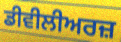
ਡੀਵੀਲੀਅਰਜ਼